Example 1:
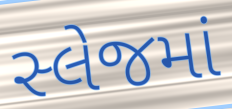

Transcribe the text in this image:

સ્લેજમાં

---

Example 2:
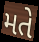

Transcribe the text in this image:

મતે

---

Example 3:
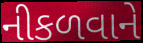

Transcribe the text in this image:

નીકળવાને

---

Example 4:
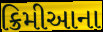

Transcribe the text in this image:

ક્રિમીઆના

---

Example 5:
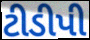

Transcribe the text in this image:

ટીડીપી